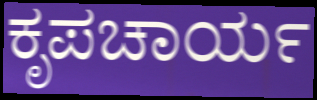
ಕೃಪಚಾರ್ಯ